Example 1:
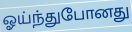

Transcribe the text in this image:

ஓய்ந்துபோனது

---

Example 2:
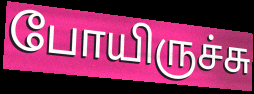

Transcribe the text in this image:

போயிருச்சு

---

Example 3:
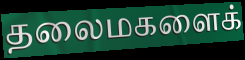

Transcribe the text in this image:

தலைமகளைக்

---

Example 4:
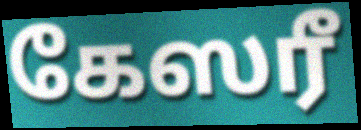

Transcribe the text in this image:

கேஸரீ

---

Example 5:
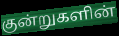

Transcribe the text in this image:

குன்றுகளின்